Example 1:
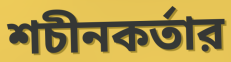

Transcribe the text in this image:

শচীনকর্তার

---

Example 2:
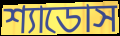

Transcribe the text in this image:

শ্যাডোস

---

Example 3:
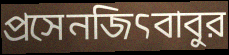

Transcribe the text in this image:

প্রসেনজিৎবাবুর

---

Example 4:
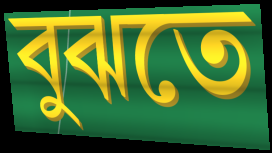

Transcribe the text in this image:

বুঝতে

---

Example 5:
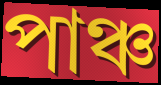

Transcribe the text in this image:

পাঞ্চ